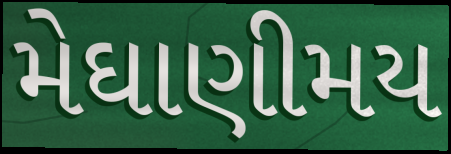
મેઘાણીમય